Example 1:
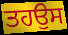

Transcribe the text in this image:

ਤਹਉਸ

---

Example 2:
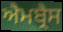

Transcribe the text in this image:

ਐਮਬ੍ਰੈਸ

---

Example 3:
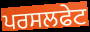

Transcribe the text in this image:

ਪਰਸਲਫੇਟ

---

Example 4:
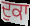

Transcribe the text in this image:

ਦੁਕਾ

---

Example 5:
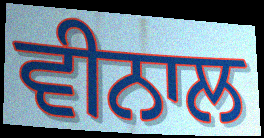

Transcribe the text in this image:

ਵੀਨਾਲ